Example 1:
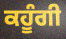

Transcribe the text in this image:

ਕਹੂੰਗੀ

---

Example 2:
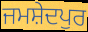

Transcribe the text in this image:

ਜਮਸ਼ੇਦਪੁਰ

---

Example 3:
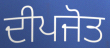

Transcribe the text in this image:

ਦੀਪਜੋਤ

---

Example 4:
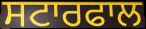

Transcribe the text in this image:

ਸਟਾਰਫਾਲ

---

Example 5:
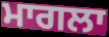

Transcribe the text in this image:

ਮਾਗਲਾ